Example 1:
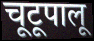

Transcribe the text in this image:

चूटूपालू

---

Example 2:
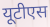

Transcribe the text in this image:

यूटीएस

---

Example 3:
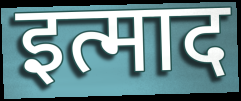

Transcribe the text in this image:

इत्माद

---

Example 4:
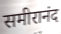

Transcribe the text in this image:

समीरानंद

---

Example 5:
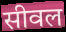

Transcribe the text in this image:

सीवल